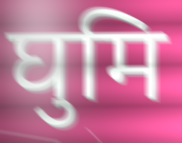
घुमि